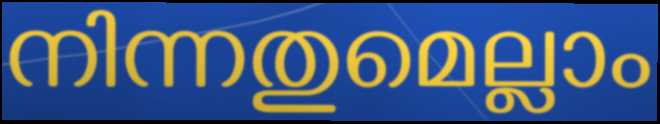
നിന്നതുമെല്ലാം